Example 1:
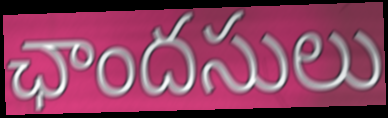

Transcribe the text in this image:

ఛాందసులు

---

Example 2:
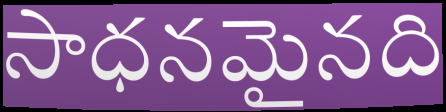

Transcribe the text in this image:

సాధనమైనది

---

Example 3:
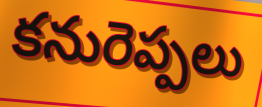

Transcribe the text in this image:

కనురెప్పలు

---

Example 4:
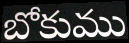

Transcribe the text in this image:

బోకుము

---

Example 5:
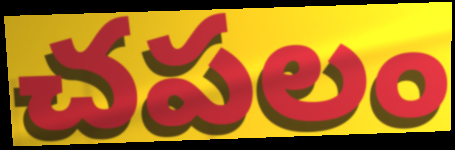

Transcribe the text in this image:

చపలం